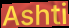
Ashti